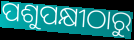
ପଶୁପକ୍ଷୀଠାରୁ